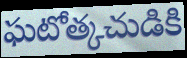
ఘటోత్కచుడికి